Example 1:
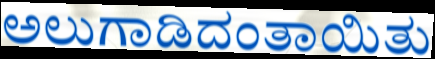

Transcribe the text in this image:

ಅಲುಗಾಡಿದಂತಾಯಿತು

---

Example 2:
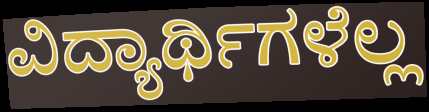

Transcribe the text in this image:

ವಿದ್ಯಾರ್ಥಿಗಳೆಲ್ಲ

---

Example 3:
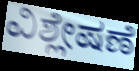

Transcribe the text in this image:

ವಿಶ್ಲೇಷಣೆ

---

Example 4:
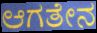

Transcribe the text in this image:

ಆಗತೇನ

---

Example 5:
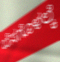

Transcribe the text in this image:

ಬೆಸಗೊಳಲ್ಕೆ